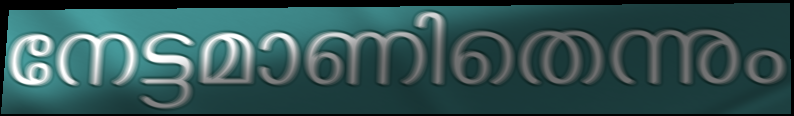
നേട്ടമാണിതെന്നും